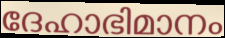
ദേഹാഭിമാനം